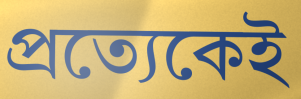
প্ৰত্যেকেই